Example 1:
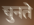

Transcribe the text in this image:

चुनते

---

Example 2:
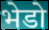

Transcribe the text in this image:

भेडो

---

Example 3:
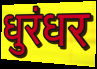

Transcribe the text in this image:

धुरंधर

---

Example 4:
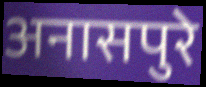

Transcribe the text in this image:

अनासपुरे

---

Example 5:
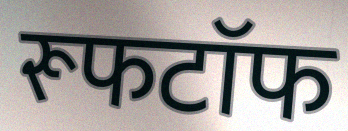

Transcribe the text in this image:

रूफटॉफ